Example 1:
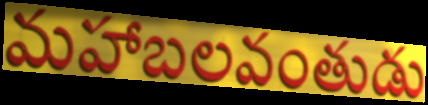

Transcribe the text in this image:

మహాబలవంతుడు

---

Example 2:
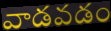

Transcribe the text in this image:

వాడవడం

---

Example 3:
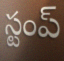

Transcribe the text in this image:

స్టంప్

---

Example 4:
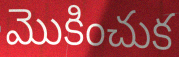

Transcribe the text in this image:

మొకించుక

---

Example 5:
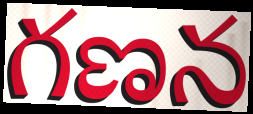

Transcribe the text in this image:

గణన